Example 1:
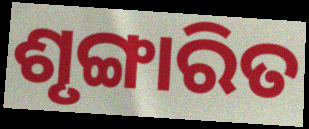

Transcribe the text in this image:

ଶୃଙ୍ଗାରିତ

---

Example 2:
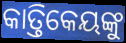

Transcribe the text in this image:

କାତ୍ତିକେୟଙ୍କୁ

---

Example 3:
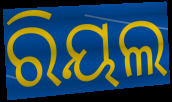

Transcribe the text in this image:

ରିୟଲ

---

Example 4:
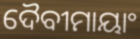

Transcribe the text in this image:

ଦୈବୀମାୟାଂ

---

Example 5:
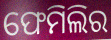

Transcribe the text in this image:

ଫେମିଲିର